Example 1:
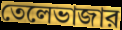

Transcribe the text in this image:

তেলেভাজার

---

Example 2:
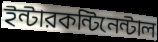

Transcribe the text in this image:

ইন্টারকন্টিনেন্টাল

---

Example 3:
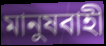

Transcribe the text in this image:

মানুষবাহী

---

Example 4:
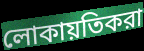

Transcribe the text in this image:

লোকায়তিকরা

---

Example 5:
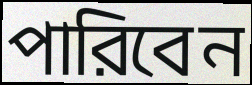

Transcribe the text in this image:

পারিবেন